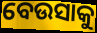
ବେଉସାକୁ